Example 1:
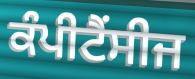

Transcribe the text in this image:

ਕੰਪੀਟੈਂਸੀਜ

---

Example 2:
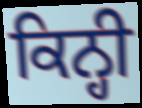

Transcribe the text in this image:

ਕਿਨ੍ਹੀ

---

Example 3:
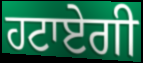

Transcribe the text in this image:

ਹਟਾਏਗੀ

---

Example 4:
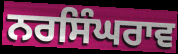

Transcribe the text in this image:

ਨਰਸਿੰਘਰਾਵ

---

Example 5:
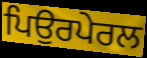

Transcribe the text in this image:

ਪਿਉਰਪੇਰਲ